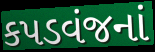
કપડવંજનાં